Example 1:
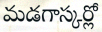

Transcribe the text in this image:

మడగాస్కర్లో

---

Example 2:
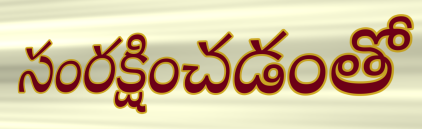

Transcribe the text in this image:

సంరక్షించడంతో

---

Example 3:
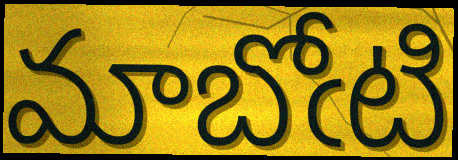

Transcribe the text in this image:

మాబోఁటి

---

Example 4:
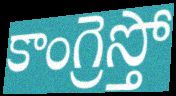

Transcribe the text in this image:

కాంగ్రెస్తో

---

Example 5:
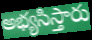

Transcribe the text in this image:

అభ్యసిస్తారు